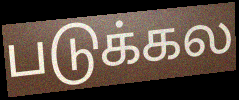
படுக்கல